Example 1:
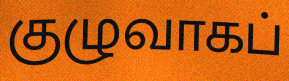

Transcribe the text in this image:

குழுவாகப்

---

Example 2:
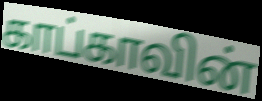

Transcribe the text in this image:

காப்காவின்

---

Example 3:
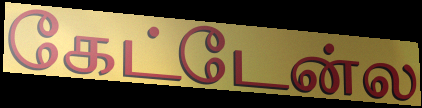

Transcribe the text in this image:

கேட்டேன்ல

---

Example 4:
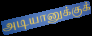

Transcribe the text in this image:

அடியானுக்குக்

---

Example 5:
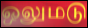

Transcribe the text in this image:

ஒலுமடு